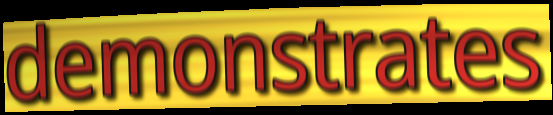
demonstrates